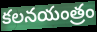
కలనయంత్రం